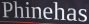
Phinehas